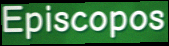
Episcopos